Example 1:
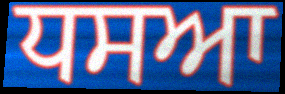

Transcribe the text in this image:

ਧਸਆ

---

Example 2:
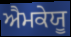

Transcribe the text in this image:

ਐਮਕੇਯੂ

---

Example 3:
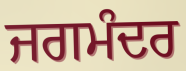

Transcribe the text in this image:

ਜਗਮੰਦਰ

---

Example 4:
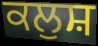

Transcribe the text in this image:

ਕਲੁਸ਼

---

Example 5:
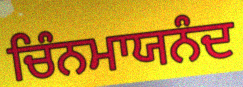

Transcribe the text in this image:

ਚਿੰਨਮਾਯਨੰਦ